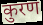
कुरण